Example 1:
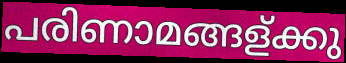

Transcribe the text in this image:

പരിണാമങ്ങള്ക്കു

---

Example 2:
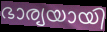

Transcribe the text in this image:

ഭാര്യയായി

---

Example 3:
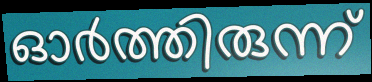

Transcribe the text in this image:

ഓർത്തിരുന്ന്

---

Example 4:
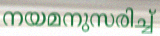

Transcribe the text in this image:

നയമനുസരിച്ച്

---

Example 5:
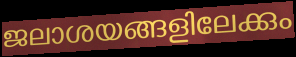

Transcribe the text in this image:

ജലാശയങ്ങളിലേക്കും